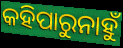
କହିପାରୁନାହୁଁ